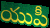
యుపీ